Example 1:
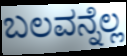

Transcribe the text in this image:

ಬಲವನ್ನೆಲ್ಲ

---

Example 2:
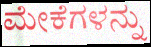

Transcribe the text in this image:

ಮೇಕೆಗಳನ್ನು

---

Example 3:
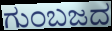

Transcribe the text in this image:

ಗುಂಬಜದ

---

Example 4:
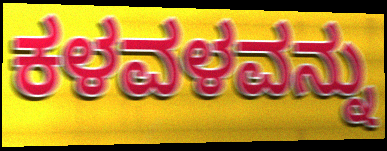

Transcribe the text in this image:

ಕಳವಳವನ್ನು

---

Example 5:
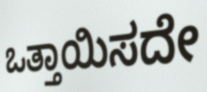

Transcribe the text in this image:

ಒತ್ತಾಯಿಸದೇ